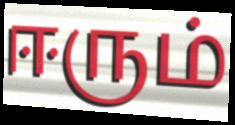
ஈரும்